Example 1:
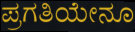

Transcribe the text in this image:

ಪ್ರಗತಿಯೇನೂ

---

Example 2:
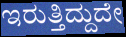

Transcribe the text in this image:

ಇರುತ್ತಿದ್ದುದೇ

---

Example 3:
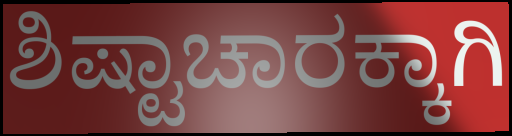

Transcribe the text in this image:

ಶಿಷ್ಟಾಚಾರಕ್ಕಾಗಿ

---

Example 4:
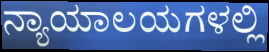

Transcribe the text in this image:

ನ್ಯಾಯಾಲಯಗಳಲ್ಲಿ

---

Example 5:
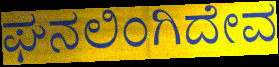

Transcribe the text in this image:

ಘನಲಿಂಗಿದೇವ